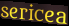
sericea